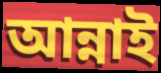
আন্নাই